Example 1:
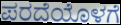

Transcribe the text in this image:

ಪರದೆಯೊಳಗೆ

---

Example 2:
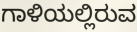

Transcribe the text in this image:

ಗಾಳಿಯಲ್ಲಿರುವ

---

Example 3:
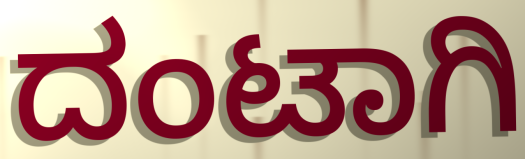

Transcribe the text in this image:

ದಂಟಾಗಿ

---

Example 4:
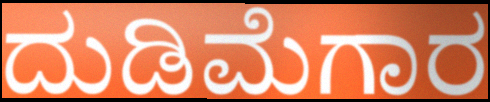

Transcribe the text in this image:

ದುಡಿಮೆಗಾರ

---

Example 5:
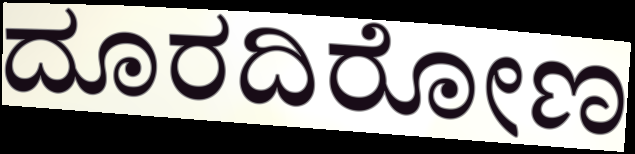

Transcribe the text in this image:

ದೂರದಿರೋಣ